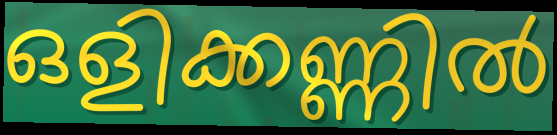
ഒളിക്കണ്ണിൽ